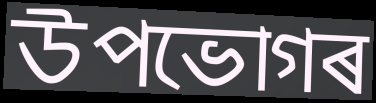
উপভোগৰ